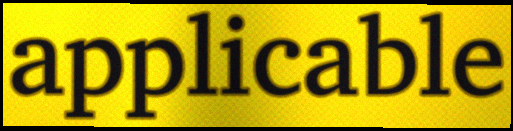
applicable